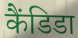
कैंडिडा